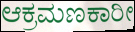
ಆಕ್ರಮಣಕಾರೀ